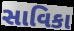
સાવિકા